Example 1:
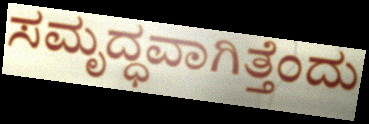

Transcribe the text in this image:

ಸಮೃದ್ಧವಾಗಿತ್ತೆಂದು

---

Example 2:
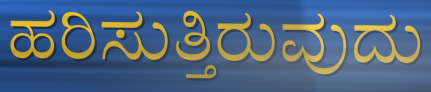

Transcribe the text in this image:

ಹರಿಸುತ್ತಿರುವುದು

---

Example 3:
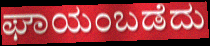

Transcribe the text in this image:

ಘಾಯಂಬಡೆದು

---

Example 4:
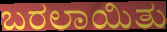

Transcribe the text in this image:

ಬರಲಾಯಿತು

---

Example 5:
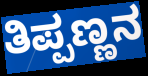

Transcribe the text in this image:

ತಿಪ್ಪಣ್ಣನ